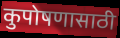
कुपोषणासाठी